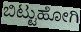
ಬಿಟ್ಟುಹೋಗಿ